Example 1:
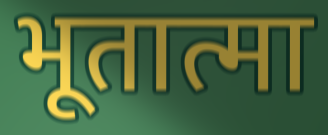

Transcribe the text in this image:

भूतात्मा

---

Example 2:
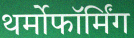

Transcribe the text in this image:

थर्मोफॉर्मिंग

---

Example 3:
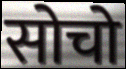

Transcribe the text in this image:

सोचो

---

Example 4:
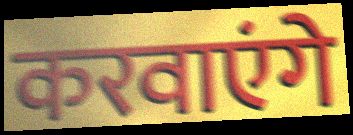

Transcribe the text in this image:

करवाएंगे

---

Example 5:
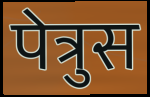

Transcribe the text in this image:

पेत्रुस